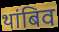
थांबिव